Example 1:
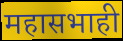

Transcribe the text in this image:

महासभाही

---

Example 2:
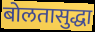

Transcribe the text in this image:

बोलतासुद्धा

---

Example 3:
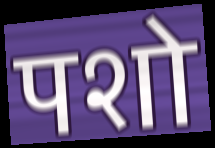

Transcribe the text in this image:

पशो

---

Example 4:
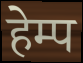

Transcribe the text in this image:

हेम्प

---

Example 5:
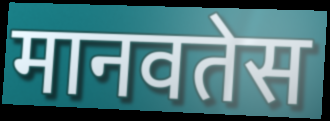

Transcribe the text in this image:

मानवतेस